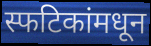
स्फटिकांमधून